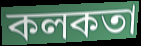
কলকতা